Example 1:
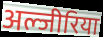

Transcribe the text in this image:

अल्जीरिया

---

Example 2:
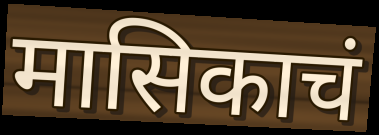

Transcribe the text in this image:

मासिकाचं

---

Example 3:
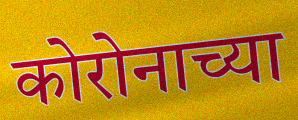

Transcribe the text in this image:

कोरोनाच्या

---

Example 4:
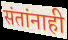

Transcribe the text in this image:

संतांनाही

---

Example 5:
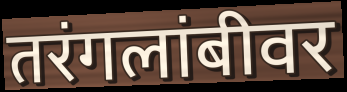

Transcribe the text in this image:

तरंगलांबीवर